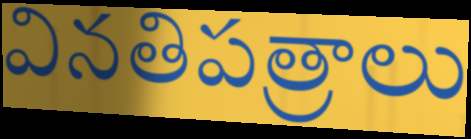
వినతిపత్రాలు